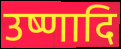
उष्णादि